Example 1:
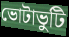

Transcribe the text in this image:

ভোটাভুটি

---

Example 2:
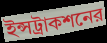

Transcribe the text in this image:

ইন্সট্রাকশনের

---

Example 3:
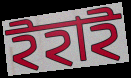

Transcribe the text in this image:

ইহাই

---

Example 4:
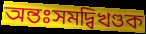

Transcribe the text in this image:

অন্তঃসমদ্বিখণ্ডক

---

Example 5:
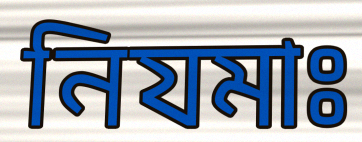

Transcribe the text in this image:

নিযমাঃ